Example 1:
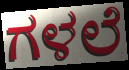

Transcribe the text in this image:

ಗಳಲೆ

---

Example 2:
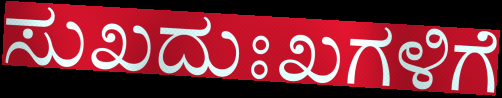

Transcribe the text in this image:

ಸುಖದುಃಖಗಳಿಗೆ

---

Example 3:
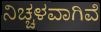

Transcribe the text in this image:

ನಿಚ್ಚಳವಾಗಿವೆ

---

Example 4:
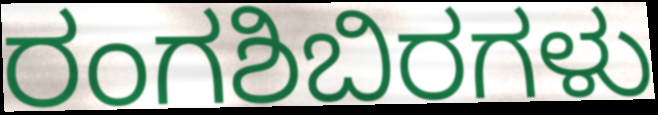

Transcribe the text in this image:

ರಂಗಶಿಬಿರಗಳು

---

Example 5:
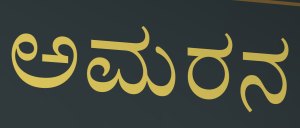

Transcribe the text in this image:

ಅಮರನ